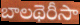
బాలథెరీసా